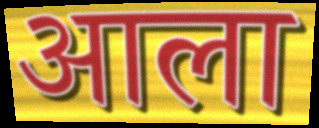
आला